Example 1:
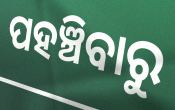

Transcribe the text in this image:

ପହଞ୍ଚିବାରୁ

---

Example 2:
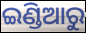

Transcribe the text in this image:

ଇଣ୍ଡିଆରୁ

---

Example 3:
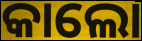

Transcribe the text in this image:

କାଲୋ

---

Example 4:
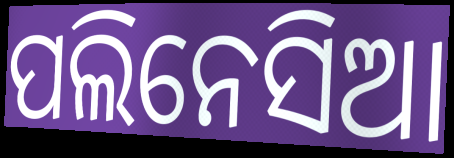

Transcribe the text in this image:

ପଲିନେସିଆ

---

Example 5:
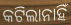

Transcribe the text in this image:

କଟିଲାନାହିଁ